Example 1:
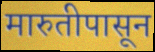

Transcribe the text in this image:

मारुतीपासून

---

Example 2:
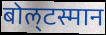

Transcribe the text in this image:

बोल्टस्मान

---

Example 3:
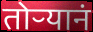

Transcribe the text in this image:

तोऱ्यानं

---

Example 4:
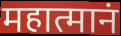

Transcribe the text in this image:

महात्मानं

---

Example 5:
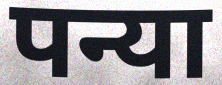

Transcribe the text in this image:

पन्या